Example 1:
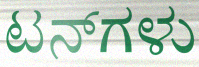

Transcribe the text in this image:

ಟನ್‌ಗಳು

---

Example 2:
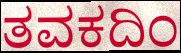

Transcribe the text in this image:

ತವಕದಿಂ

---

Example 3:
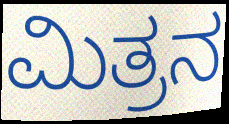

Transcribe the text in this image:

ಮಿತ್ರನ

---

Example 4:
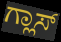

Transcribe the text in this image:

ಗ್ಲಾಸ್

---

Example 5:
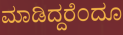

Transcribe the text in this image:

ಮಾಡಿದ್ದರೆಂದೂ